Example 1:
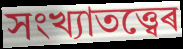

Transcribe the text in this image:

সংখ্যাতত্ত্বেৰ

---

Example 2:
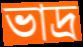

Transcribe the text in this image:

ভাদ্ৰ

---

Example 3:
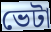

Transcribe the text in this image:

ভেটা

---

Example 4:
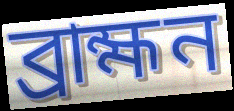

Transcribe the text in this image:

ব্ৰাহ্মন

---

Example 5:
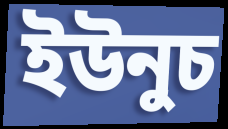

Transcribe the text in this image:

ইউনুচ